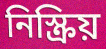
নিস্ক্রিয়